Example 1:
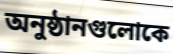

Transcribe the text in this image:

অনুষ্ঠানগুলোকে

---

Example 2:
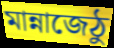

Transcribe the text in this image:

মান্নাজেঠু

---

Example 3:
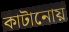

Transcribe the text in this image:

কাটানোয়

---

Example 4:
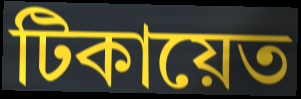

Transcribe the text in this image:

টিকায়েত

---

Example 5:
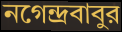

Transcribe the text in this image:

নগেন্দ্রবাবুর